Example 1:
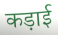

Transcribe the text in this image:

कड़ाई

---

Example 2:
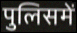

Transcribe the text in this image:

पुलिसमें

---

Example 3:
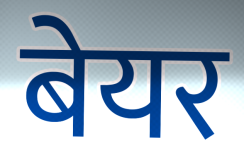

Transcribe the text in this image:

बेयर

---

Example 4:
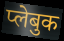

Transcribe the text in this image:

प्लेबुक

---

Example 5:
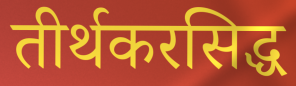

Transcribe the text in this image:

तीर्थकरसिद्ध